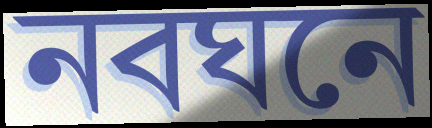
নবঘনে